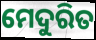
ମେଦୁରିତ